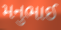
મનુભાઈ